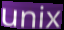
unix